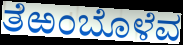
ತೆಱಂಬೊಳೆವ